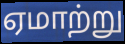
ஏமாற்று